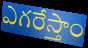
ఎగరేస్తాం